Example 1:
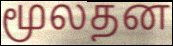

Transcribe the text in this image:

மூலதன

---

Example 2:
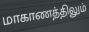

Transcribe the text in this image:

மாகாணத்திலும்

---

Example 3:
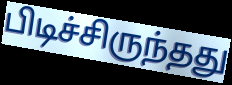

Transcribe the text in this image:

பிடிச்சிருந்தது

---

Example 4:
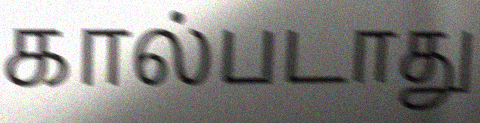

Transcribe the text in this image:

கால்படாது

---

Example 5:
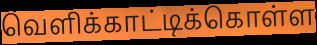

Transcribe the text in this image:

வெளிக்காட்டிக்கொள்ள